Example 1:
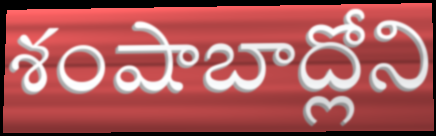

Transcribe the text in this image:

శంషాబాద్లోని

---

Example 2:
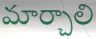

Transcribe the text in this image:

మార్చాలి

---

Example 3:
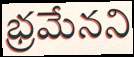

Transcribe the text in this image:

భ్రమేనని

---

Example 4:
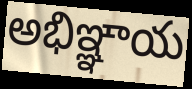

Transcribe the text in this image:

అభిఞ్ఞాయ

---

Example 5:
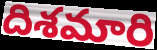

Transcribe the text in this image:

దిశమారి